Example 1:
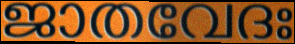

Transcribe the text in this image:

ജാതവേദഃ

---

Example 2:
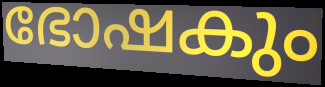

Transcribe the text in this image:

ഭോഷകും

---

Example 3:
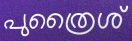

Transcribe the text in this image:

പുത്രൈശ്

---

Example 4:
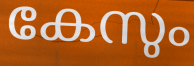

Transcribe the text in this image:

കേസും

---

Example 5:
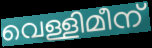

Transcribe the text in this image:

വെള്ളിമീന്